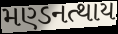
મણ્ડનત્થાય